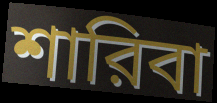
শারিবা